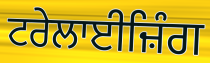
ਟਰੇਲਾਈਜ਼ਿੰਗ